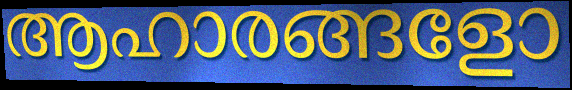
ആഹാരങ്ങളോ